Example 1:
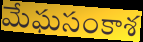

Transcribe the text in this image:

మేఘసంకాశ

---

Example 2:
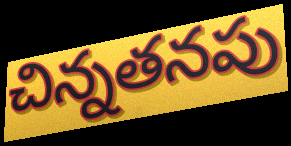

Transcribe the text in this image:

చిన్నతనపు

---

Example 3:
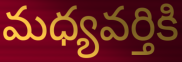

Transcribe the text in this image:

మధ్యవర్తికి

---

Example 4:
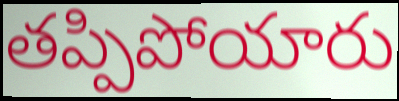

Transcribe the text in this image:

తప్పిపోయారు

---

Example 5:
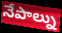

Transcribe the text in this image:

నేపాల్ను